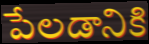
పేలడానికి